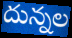
దున్నల